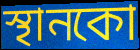
স্থানকো